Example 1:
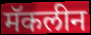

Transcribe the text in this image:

मॅकलीन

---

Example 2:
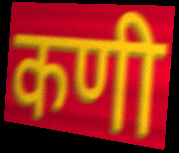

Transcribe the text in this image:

कणी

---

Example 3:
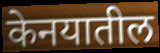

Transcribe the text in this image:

केनयातील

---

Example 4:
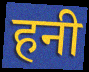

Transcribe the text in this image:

हनी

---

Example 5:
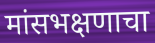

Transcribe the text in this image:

मांसभक्षणाचा